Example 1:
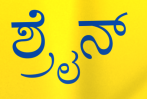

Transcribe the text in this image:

ಶ್ರೈನ್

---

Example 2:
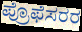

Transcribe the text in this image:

ಪ್ರೊಫೆಸರರ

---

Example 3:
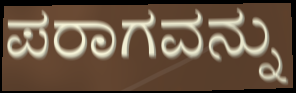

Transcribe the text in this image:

ಪರಾಗವನ್ನು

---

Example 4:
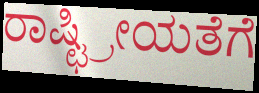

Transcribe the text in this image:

ರಾಷ್ಟ್ರೀಯತೆಗೆ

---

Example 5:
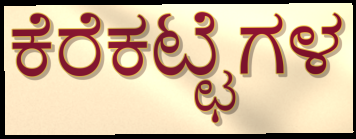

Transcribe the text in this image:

ಕೆರೆಕಟ್ಟೆಗಳ